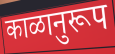
काळानुरूप